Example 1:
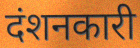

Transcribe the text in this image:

दंशनकारी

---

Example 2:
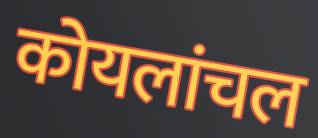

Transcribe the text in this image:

कोयलांचल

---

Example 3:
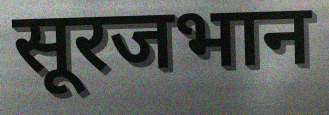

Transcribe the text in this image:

सूरजभान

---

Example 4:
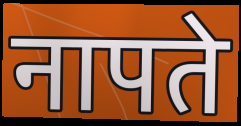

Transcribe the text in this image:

नापते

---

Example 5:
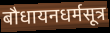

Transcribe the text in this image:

बौधायनधर्मसूत्र